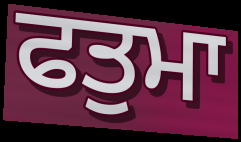
ਫਤੁਮਾ